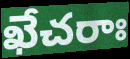
ఖేచరాః